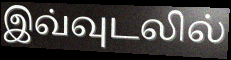
இவ்வுடலில்